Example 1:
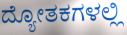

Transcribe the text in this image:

ದ್ಯೋತಕಗಳಲ್ಲಿ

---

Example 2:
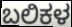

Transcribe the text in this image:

ಬಲಿಕಳ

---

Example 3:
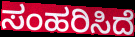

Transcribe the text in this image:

ಸಂಹರಿಸಿದೆ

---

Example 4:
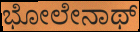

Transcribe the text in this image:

ಭೋಲೇನಾಥ್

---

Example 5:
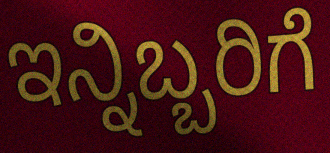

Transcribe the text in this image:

ಇನ್ನಿಬ್ಬರಿಗೆ